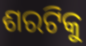
ଶରଟିକୁ